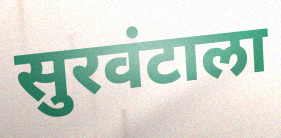
सुरवंटाला